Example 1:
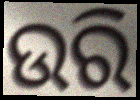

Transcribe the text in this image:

ଉରି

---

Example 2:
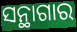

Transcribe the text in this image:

ସନ୍ଥାଗାର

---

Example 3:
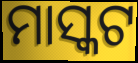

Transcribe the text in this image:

ମାସ୍କଟ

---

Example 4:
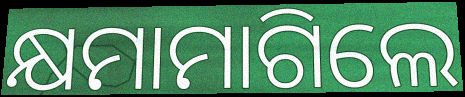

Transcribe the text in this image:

କ୍ଷମାମାଗିଲେ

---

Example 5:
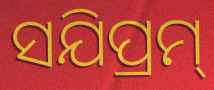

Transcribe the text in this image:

ସଯିପ୍ରମ୍